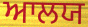
ਆਲਯ